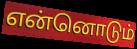
என்னொடும்